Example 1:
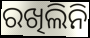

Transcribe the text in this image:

ରଖିଲିନି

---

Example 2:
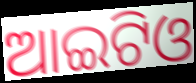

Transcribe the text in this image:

ଆଇଟିଓ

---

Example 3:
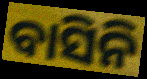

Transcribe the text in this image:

ବାସିନି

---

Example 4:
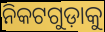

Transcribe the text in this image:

ନିକଟଗୁଡ଼ାକୁ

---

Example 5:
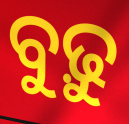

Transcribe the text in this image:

ବୁଢ଼ୁ